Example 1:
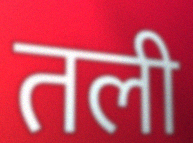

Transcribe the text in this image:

तली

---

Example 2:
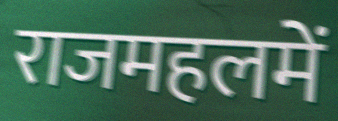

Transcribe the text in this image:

राजमहलमें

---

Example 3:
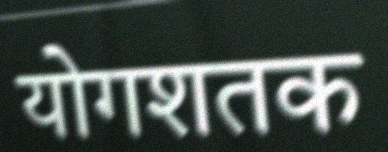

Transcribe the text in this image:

योगशतक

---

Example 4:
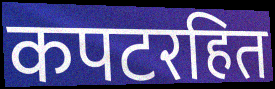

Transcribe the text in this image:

कपटरहित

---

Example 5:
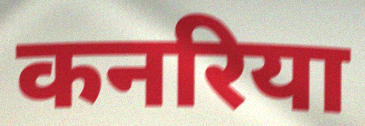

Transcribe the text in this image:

कनरिया